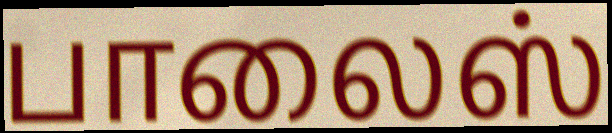
பாலைஸ்